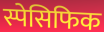
स्पेसिफिक